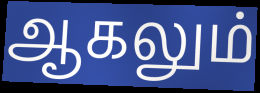
ஆகலும்